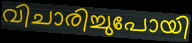
വിചാരിച്ചുപോയി